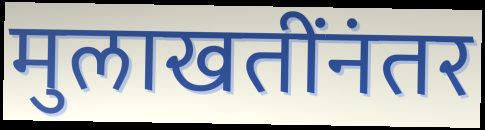
मुलाखतींनंतर